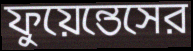
ফুয়েন্তেসের